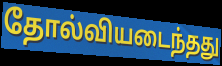
தோல்வியடைந்தது